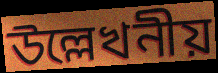
উল্লেখনীয়